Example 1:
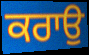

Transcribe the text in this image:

ਕਰਾਉ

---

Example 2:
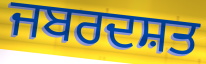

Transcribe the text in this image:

ਜਬਰਦਸ਼ਤ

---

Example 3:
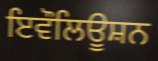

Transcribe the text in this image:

ਇਵੌਲਿਊਸ਼ਨ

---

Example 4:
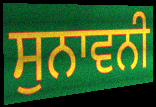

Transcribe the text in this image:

ਸੁਨਾਵਨੀ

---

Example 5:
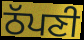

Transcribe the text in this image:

ਠੱਪਣੀ